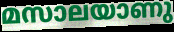
മസാലയാണു